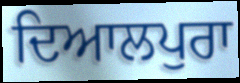
ਦਿਆਲਪੁਰਾ